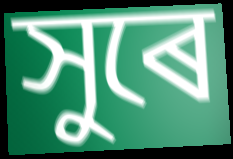
সুৰে